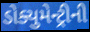
ડોક્યુમેન્ટ્રીની